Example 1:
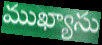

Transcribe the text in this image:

ముఖ్యాసు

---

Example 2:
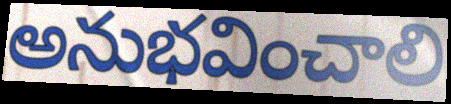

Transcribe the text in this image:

అనుభవించాలి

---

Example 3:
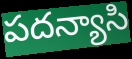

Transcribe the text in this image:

పదన్యాసి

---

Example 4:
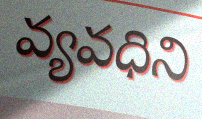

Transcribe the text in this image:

వ్యవధిని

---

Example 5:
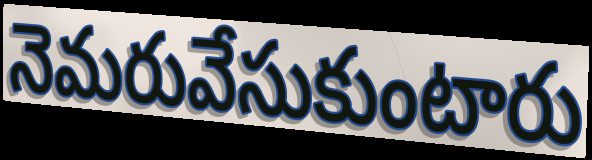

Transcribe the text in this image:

నెమరువేసుకుంటారు